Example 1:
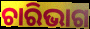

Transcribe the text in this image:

ଚାରିଭାଗ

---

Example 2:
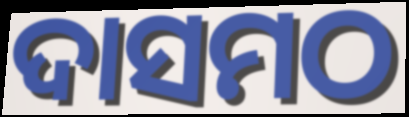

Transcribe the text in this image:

ଦାସମଠ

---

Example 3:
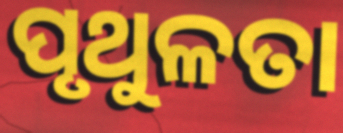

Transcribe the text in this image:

ପୃଥୁଳତା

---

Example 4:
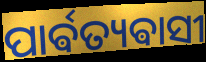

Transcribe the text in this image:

ପାର୍ଵତ୍ୟଵାସୀ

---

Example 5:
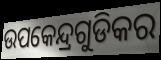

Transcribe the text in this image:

ଉପକେନ୍ଦ୍ରଗୁଡିକର